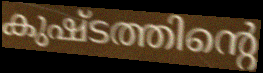
കുഷ്ടത്തിന്റെ